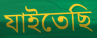
যাইতেছি